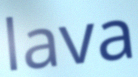
lava